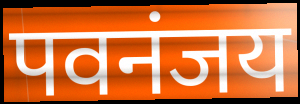
पवनंजय